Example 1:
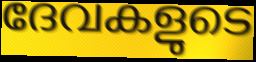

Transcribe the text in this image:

ദേവകളുടെ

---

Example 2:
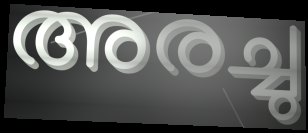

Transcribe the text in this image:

അരച്ചു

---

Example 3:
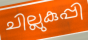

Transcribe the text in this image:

ചില്ലുകുപ്പി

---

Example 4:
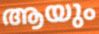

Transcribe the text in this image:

ആയും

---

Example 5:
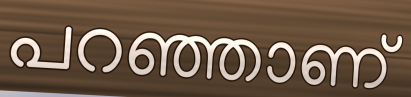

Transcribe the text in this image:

പറഞ്ഞാണ്